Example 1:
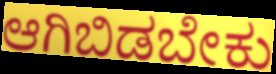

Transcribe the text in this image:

ಆಗಿಬಿಡಬೇಕು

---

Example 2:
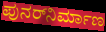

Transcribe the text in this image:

ಪುನರ್‌ನಿರ್ಮಾಣ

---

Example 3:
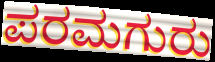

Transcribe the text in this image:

ಪರಮಗುರು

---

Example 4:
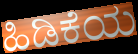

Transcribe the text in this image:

ಹಿಡಿಕೆಯ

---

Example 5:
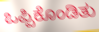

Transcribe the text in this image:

ಒಪ್ಪಿಕೊಂಡಿತು